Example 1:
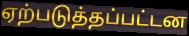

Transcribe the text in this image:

ஏற்படுத்தப்பட்டன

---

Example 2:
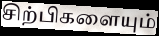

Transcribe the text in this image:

சிற்பிகளையும்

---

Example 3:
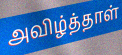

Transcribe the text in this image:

அவிழ்த்தாள்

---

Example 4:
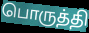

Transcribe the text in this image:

பொருத்தி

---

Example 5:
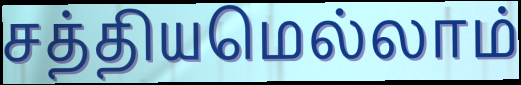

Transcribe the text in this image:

சத்தியமெல்லாம்